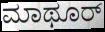
ಮಾಥೂರ್